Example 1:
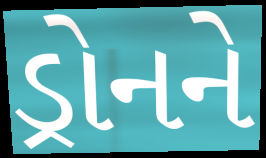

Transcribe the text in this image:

ડ્રોનને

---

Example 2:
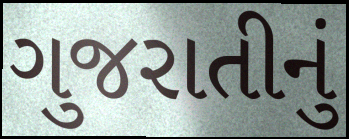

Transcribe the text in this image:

ગુજરાતીનું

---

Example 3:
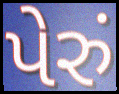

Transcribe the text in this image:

પેરું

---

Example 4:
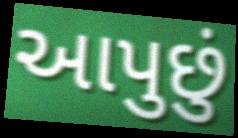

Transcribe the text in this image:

આપુછું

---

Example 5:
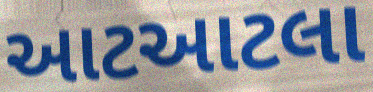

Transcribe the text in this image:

આટઆટલા